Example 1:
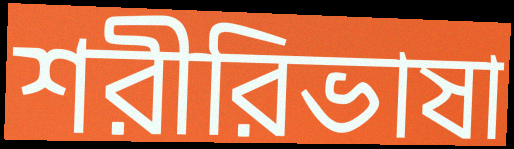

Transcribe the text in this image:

শরীরিভাষা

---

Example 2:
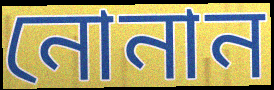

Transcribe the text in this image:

নোনান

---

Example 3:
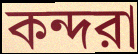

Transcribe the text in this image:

কন্দরা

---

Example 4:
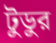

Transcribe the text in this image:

টুডুর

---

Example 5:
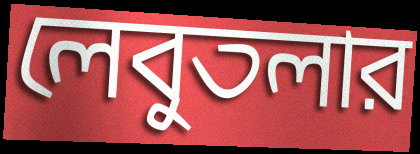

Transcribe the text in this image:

লেবুতলার